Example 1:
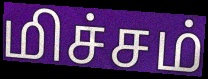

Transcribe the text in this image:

மிச்சம்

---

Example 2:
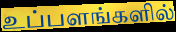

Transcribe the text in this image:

உப்பளங்களில்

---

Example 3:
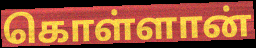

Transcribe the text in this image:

கொள்ளான்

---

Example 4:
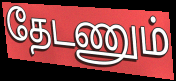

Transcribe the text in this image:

தேடணும்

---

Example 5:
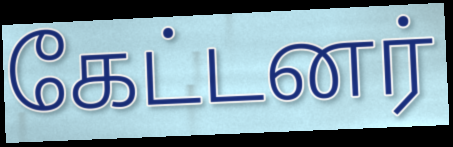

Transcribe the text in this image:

கேட்டனர்